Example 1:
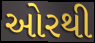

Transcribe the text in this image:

ઓરથી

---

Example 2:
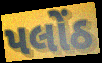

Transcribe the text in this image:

પલોંઠ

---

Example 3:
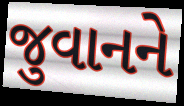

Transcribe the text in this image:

જુવાનને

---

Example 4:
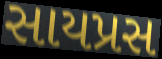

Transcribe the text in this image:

સાયપ્રસ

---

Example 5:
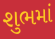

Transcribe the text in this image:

શુભમાં